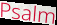
Psalm